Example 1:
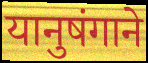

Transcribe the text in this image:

यानुषंगाने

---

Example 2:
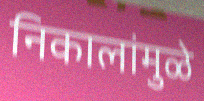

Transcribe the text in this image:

निकालांमुळे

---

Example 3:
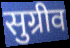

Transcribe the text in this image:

सुग्रीव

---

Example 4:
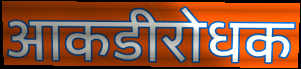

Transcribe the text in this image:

आकडीरोधक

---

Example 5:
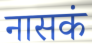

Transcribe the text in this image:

नासकं